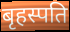
बृहस्पति